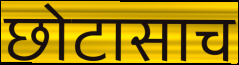
छोटासाच